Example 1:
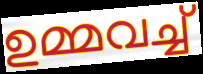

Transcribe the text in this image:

ഉമ്മവച്ച്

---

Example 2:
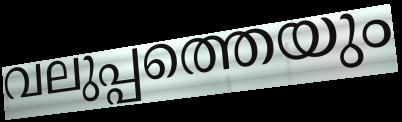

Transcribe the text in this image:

വലുപ്പത്തെയും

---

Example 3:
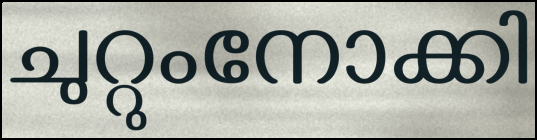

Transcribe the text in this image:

ചുറ്റുംനോക്കി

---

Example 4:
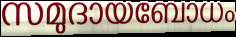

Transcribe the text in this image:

സമുദായബോധം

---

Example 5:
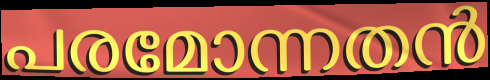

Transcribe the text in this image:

പരമോന്നതൻ